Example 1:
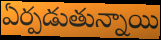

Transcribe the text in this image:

ఏర్పడుతున్నాయి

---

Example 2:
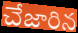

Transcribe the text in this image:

చేజారిన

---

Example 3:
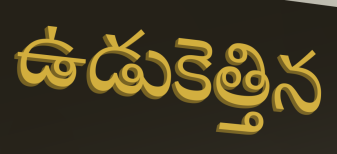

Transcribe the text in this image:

ఉడుకెత్తిన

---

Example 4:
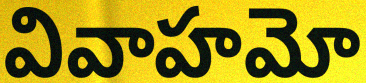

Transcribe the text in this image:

వివాహమో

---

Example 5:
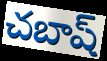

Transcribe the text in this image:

చబాష్